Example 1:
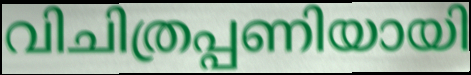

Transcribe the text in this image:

വിചിത്രപ്പണിയായി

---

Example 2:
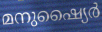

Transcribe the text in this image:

മനുഷ്യൈർ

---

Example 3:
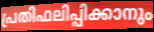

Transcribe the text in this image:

പ്രതിഫലിപ്പിക്കാനും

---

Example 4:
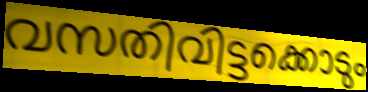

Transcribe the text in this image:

വസതിവിട്ടക്കൊടും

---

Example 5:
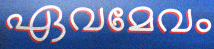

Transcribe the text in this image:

ഏവമേവം